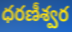
ధరణీశ్వర